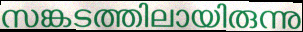
സങ്കടത്തിലായിരുന്നു